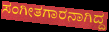
ಸಂಗೀತಗಾರನಾಗಿದ್ದ